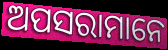
ଅପସରାମାନେ